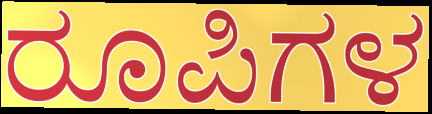
ರೂಪಿಗಳ